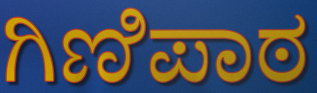
ಗಿಣಿಪಾಠ